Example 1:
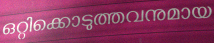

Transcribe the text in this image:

ഒറ്റിക്കൊടുത്തവനുമായ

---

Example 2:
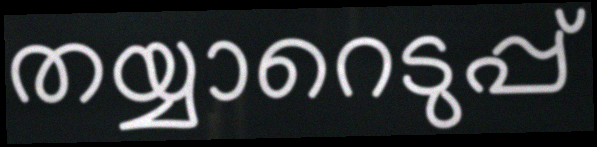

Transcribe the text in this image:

തയ്യാറെടുപ്പ്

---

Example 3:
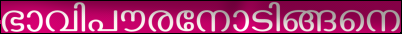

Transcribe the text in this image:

ഭാവിപൗരനോടിങ്ങനെ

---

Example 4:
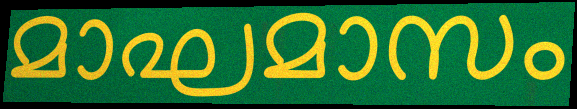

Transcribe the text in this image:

മാഘമാസം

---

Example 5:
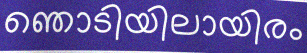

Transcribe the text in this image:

ഞൊടിയിലായിരം